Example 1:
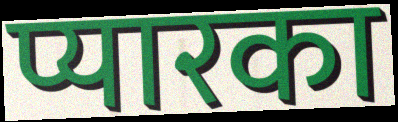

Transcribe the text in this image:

प्यारका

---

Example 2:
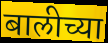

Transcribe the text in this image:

बालीच्या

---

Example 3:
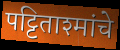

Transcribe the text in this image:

पट्टिताश्मांचे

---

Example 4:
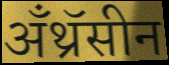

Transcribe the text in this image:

अँथ्रॅसीन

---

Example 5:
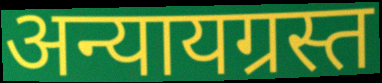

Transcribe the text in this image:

अन्यायग्रस्त